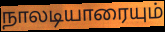
நாலடியாரையும்